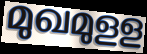
മുഖമുളള